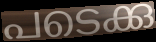
പടെക്കു